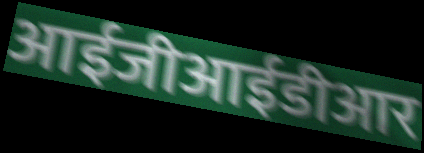
आईजीआईडीआर